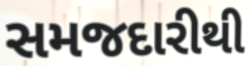
સમજદારીથી